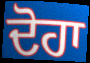
ਦੋਹਾ